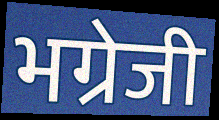
भग्रेजी